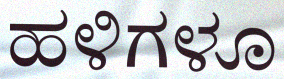
ಹಳಿಗಳೂ